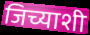
जिच्याशी